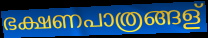
ഭക്ഷണപാത്രങ്ങള്